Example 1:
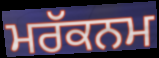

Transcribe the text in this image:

ਮਰੱਕਨਮ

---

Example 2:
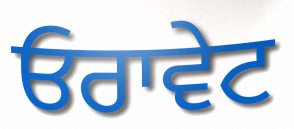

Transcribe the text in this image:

ਓਰਾਵੇਟ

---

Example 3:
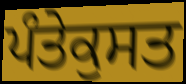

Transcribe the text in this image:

ਪੰਤੇਕੁਸਤ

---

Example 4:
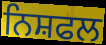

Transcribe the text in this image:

ਨਿਸ਼ਫਲ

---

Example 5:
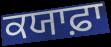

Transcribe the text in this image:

ਕਯਾਫ਼ਾ